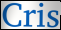
Cris